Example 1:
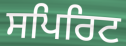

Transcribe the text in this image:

ਸਪਿਰਿਟ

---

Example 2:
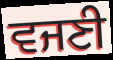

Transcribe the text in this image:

ਵਜਣੀ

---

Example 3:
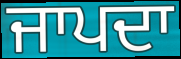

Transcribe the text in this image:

ਜਾਪਦਾ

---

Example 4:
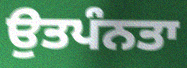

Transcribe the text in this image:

ਉਤਪੰਨਤਾ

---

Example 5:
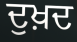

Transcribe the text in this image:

ਦੁਖ਼ਦ